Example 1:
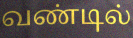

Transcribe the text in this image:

வண்டில்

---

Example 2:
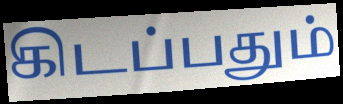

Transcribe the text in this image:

கிடப்பதும்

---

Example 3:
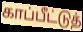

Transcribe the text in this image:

காப்பீட்டுத்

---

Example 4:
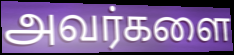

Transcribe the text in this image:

அவர்களை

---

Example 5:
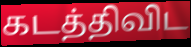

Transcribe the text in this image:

கடத்திவிட